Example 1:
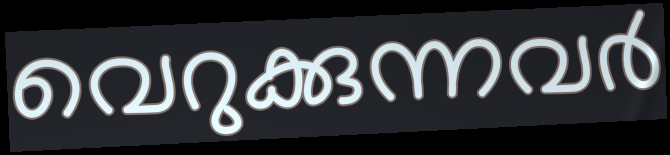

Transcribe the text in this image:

വെറുക്കുന്നവർ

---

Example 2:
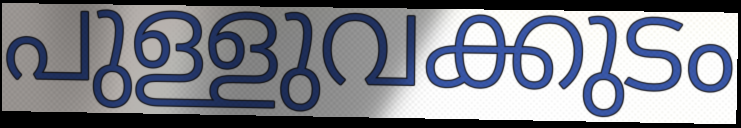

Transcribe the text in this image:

പുള്ളുവക്കുടം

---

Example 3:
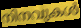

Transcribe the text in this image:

നിനവുകൾ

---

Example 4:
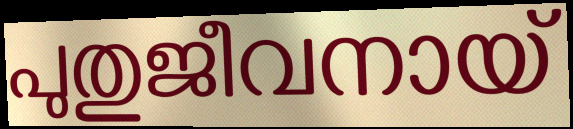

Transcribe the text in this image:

പുതുജീവനായ്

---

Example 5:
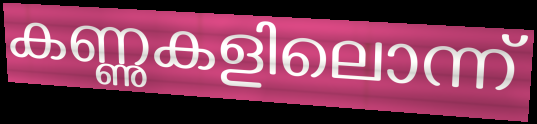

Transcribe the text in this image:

കണ്ണുകളിലൊന്ന്